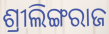
ଶ୍ରୀଲିଙ୍ଗରାଜ